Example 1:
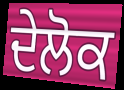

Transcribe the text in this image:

ਦੇਲੋਕ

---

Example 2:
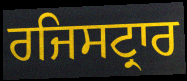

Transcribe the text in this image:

ਰਜਿਸਟ੍ਰਾਰ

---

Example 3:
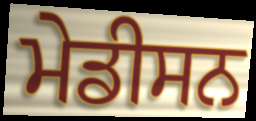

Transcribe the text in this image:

ਮੇਡੀਸਨ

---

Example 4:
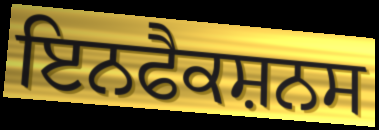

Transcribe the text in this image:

ਇਨਫੈਕਸ਼ਨਸ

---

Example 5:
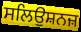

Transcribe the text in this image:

ਸਲਿਉਸ਼ਨਜ਼